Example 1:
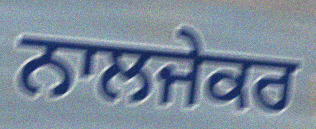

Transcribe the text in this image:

ਨਾਲਜੇਕਰ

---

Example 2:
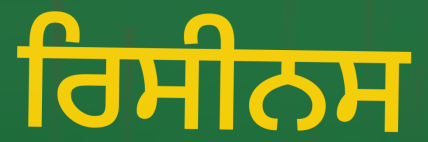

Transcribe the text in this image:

ਰਿਸੀਨਸ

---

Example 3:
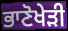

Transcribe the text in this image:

ਭਾਣੋਖੇੜੀ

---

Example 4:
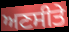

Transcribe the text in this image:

ਅਣਸੀਤੇ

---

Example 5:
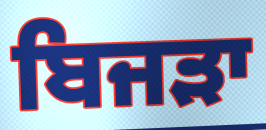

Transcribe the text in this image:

ਬਿਜੜਾ